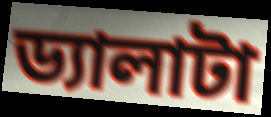
ড্যালাটা